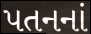
પતનનાં